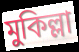
মুকিল্লা